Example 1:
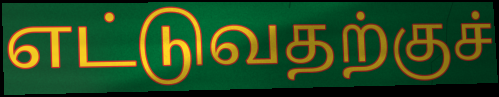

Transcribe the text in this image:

எட்டுவதற்குச்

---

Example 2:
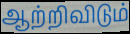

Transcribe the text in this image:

ஆற்றிவிடும்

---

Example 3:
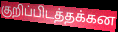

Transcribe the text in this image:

குறிப்பிடத்தக்கன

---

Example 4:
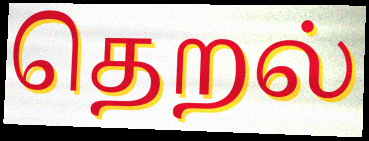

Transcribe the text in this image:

தெறல்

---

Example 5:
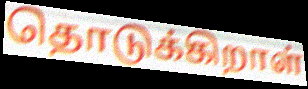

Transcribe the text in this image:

தொடுக்கிறாள்